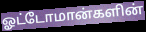
ஓட்டோமான்களின்